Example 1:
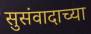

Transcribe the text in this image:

सुसंवादाच्या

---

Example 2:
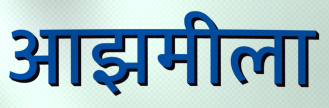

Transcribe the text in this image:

आझमीला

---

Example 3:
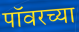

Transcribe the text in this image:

पॉवरच्या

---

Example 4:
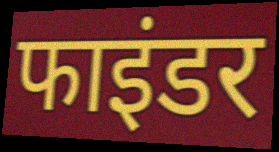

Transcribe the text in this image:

फाइंडर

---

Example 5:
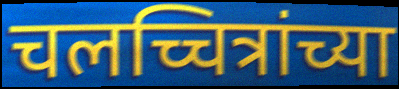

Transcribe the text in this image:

चलच्चित्रांच्या